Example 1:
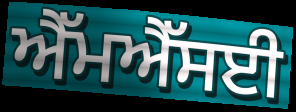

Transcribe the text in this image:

ਐੱਮਐੱਸਈ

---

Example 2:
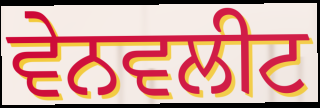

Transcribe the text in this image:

ਵੇਨਵਲੀਟ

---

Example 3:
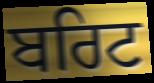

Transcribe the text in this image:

ਬਰਿਟ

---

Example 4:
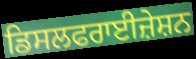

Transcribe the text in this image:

ਡਿਸਲਫਰਾਈਜ਼ੇਸ਼ਨ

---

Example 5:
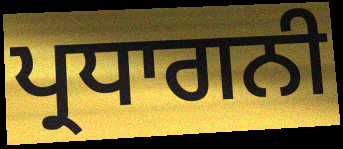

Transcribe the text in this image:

ਪ੍ਰਧਾਗਨੀ